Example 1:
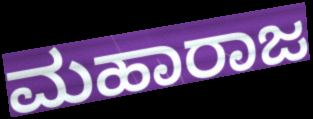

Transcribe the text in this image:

ಮಹಾರಾಜ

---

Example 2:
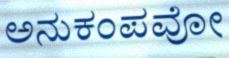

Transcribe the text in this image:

ಅನುಕಂಪವೋ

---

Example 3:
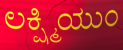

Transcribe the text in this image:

ಲಕ್ಷ್ಮಿಯುಂ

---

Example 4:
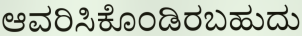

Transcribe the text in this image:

ಆವರಿಸಿಕೊಂಡಿರಬಹುದು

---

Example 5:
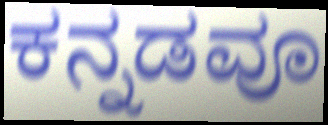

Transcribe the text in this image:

ಕನ್ನಡವೂ